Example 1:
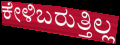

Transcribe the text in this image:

ಕೇಳಿಬರುತ್ತಿಲ್ಲ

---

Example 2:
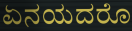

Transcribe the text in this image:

ಏನಯದರೊ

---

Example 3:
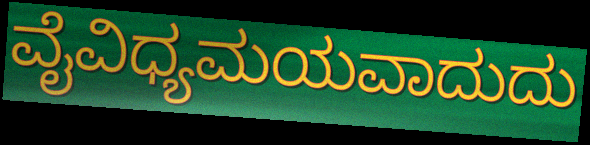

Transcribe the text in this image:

ವೈವಿಧ್ಯಮಯವಾದುದು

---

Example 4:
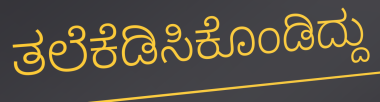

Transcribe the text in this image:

ತಲೆಕೆಡಿಸಿಕೊಂಡಿದ್ದು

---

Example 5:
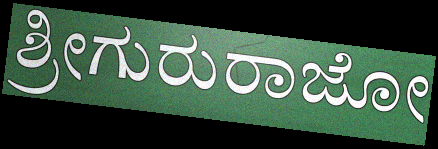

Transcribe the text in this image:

ಶ್ರೀಗುರುರಾಜೋ